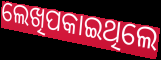
ଲେଖିପକାଇଥିଲେ